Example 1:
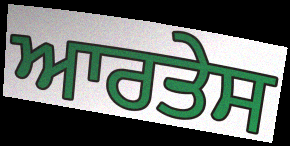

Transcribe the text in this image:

ਆਰਤੇਸ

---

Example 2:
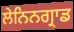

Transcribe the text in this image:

ਲੇਨਿਨਗ੍ਰਾਡ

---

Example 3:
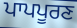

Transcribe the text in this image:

ਪਾਪਪੂਰਣ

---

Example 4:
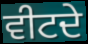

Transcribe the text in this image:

ਵੀਟਦੇ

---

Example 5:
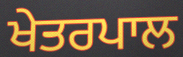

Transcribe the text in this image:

ਖੇਤਰਪਾਲ